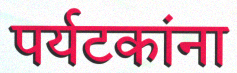
पर्यटकांना